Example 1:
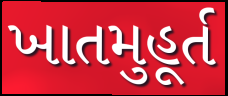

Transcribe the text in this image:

ખાતમુહૂર્ત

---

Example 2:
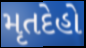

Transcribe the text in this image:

મૃતદેહો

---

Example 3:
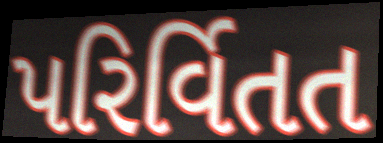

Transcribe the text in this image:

પરિર્વિતત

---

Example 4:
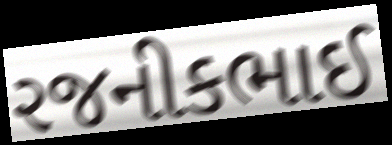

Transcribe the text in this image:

રજનીકભાઈ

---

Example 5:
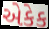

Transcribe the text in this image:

એકેક